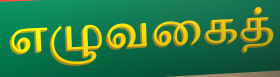
எழுவகைத்